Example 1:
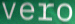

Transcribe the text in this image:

vero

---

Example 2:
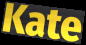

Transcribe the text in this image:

Kate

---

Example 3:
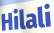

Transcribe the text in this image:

Hilali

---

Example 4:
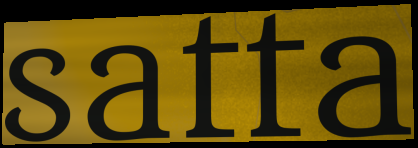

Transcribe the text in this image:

satta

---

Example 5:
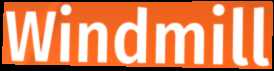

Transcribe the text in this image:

Windmill